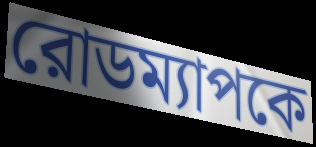
রোডম্যাপকে